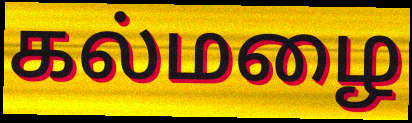
கல்மழை